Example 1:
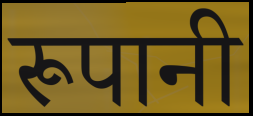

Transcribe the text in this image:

रूपानी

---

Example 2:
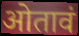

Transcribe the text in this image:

ओतावं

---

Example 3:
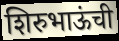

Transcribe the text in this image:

शिरुभाऊंची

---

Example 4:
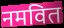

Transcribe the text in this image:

नमवित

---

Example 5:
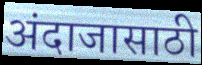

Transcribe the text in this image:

अंदाजासाठी